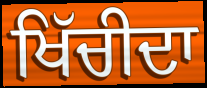
ਖਿੱਚੀਦਾ